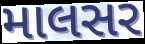
માલસર